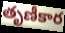
తృణీకార